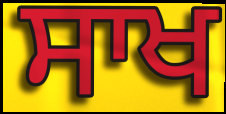
ਸਾਖ